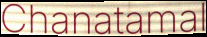
Chanatamal